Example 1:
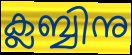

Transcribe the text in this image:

ക്ലബ്ബിനു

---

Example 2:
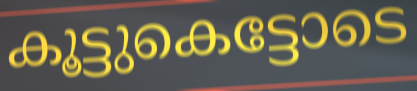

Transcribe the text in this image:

കൂട്ടുകെട്ടോടെ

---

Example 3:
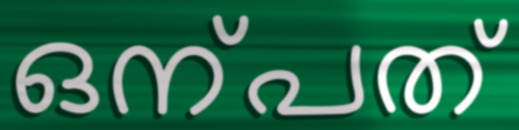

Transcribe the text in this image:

ഒന്പത്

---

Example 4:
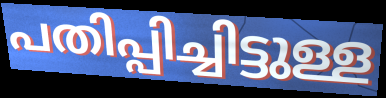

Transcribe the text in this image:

പതിപ്പിച്ചിട്ടുള്ള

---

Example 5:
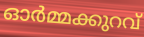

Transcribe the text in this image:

ഓർമ്മക്കുറവ്